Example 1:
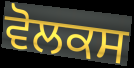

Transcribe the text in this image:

ਵੋਲਕਸ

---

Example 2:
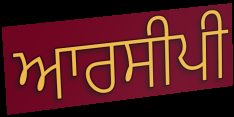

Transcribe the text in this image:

ਆਰਸੀਪੀ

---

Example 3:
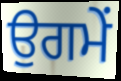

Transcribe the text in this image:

ਉਗਮੇਂ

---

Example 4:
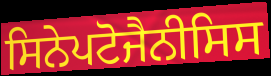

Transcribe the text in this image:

ਸਿਨੇਪਟੋਜੈਨੀਸਿਸ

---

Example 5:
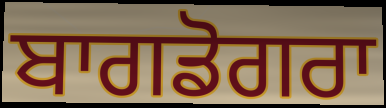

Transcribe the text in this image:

ਬਾਗਡੋਗਰਾ